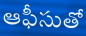
ఆఫీసుతో